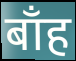
बाँह